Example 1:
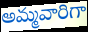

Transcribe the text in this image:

అమ్మవారిగా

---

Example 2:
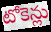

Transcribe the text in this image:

టోకెన్లు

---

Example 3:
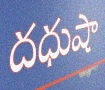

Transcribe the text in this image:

దధుషా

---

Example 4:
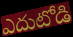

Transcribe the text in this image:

ఎదుటోడి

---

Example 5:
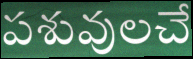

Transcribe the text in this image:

పశువులచే